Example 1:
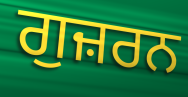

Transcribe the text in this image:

ਗੁਜ਼ਰਨ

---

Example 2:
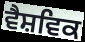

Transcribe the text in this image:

ਵੈਸ਼ਵਿਕ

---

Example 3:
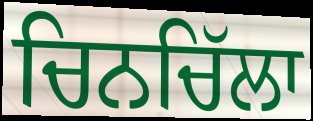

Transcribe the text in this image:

ਚਿਨਚਿੱਲਾ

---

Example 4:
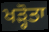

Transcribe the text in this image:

ਖੜ੍ਹੋਤਾ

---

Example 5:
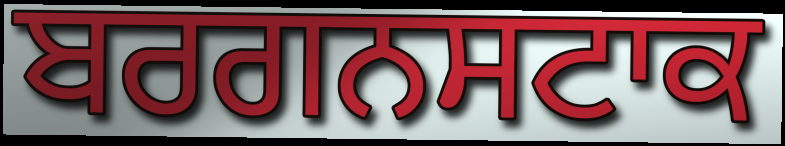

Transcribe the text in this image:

ਬਰਗਨਸਟਾਕ